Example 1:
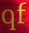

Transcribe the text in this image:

qf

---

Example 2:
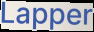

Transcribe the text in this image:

Lapper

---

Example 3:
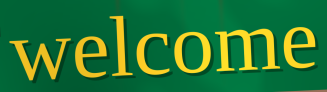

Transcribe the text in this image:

welcome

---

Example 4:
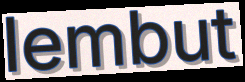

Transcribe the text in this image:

lembut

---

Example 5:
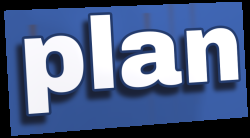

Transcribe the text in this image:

plan